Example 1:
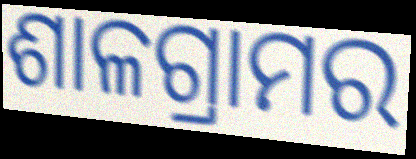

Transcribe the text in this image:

ଶାଳଗ୍ରାମର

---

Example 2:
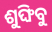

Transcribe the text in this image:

ଶୁଙ୍ଘିବୁ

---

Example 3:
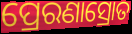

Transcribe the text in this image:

ପ୍ରେରଣାସ୍ରୋତ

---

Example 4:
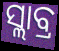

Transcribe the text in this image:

ସ୍ଲାବ୍ର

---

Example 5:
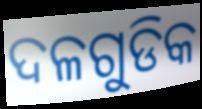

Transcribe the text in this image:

ଦଳଗୁଡିକ